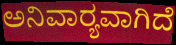
ಅನಿವಾರ‍್ಯವಾಗಿದೆ